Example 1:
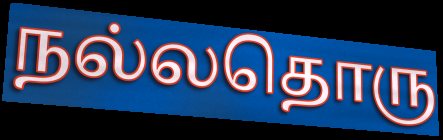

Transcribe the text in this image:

நல்லதொரு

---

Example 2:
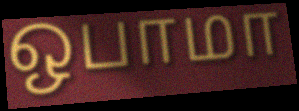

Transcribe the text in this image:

ஒபாமா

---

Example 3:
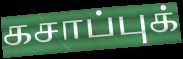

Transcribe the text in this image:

கசாப்புக்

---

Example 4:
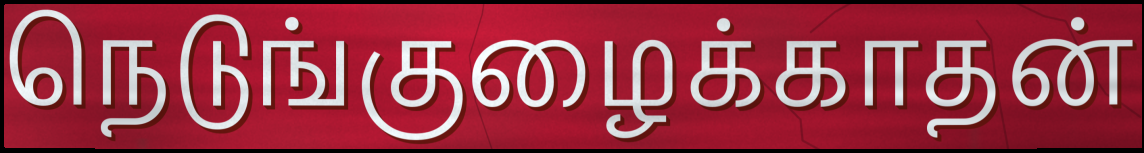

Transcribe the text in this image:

நெடுங்குழைக்காதன்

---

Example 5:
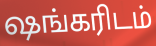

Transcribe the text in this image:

ஷங்கரிடம்